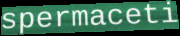
spermaceti